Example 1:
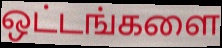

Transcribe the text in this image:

ஒட்டங்களை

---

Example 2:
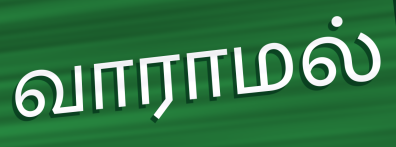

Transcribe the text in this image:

வாராமல்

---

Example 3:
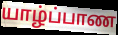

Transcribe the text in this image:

யாழ்ப்பாண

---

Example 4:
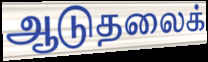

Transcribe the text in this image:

ஆடுதலைக்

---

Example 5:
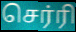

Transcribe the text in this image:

செர்ரி